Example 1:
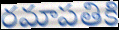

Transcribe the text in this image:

రమాపతికి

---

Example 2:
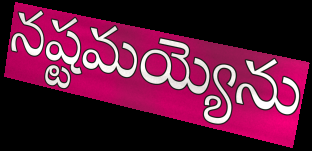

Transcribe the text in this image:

నష్టమయ్యెను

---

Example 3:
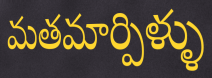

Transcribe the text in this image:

మతమార్పిళ్ళు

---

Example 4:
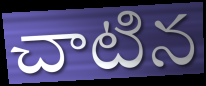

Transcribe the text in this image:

చాటిన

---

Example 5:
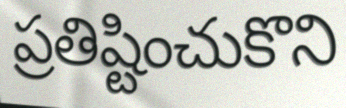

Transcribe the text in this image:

ప్రతిష్టించుకొని